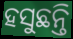
ହସୁଛନ୍ତି